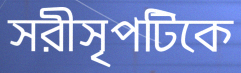
সরীসৃপটিকে